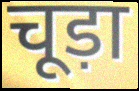
चूड़ा